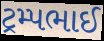
ટ્રમ્પભાઈ